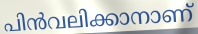
പിൻവലിക്കാനാണ്